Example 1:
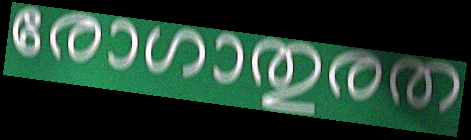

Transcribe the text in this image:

രോഗാതുരത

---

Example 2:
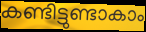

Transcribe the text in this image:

കണ്ടിട്ടുണ്ടാകാം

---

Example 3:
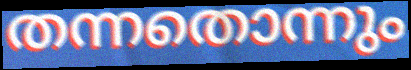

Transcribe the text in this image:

തന്നതൊന്നും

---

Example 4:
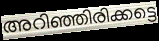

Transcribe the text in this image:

അറിഞ്ഞിരിക്കട്ടെ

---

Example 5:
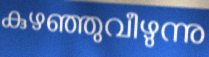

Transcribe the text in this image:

കുഴഞ്ഞുവീഴുന്നു